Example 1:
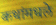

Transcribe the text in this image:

कथांमधले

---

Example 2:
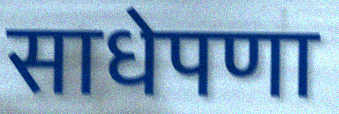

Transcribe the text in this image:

साधेपणा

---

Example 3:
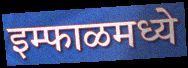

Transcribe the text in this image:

इम्फाळमध्ये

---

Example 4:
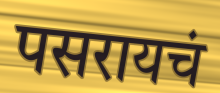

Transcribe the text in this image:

पसरायचं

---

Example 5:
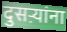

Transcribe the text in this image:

दुसऱ्‍यांना